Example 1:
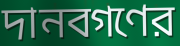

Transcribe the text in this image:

দানবগণের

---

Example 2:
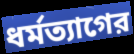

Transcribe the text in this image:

ধর্মত্যাগের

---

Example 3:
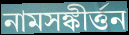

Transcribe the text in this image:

নামসঙ্কীর্ত্তন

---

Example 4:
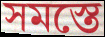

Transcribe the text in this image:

সমস্তে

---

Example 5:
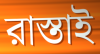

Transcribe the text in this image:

রাস্তাই